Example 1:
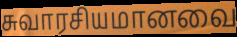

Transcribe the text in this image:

சுவாரசியமானவை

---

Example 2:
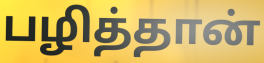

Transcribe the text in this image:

பழித்தான்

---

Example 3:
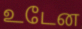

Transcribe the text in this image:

உடேன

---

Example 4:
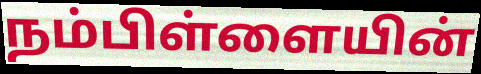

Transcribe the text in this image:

நம்பிள்ளையின்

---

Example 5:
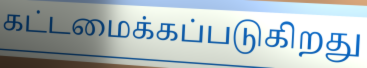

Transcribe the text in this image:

கட்டமைக்கப்படுகிறது